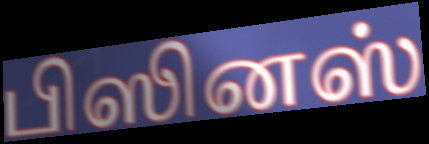
பிஸினஸ்